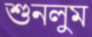
শুনলুম